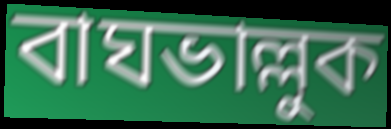
বাঘভাল্লুক